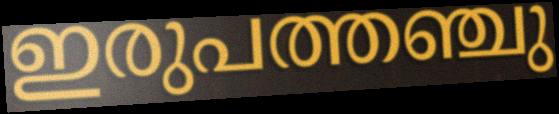
ഇരുപത്തഞ്ചു